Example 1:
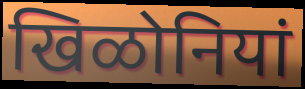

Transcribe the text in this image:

खिळोनियां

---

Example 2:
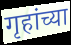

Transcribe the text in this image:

गृहांच्या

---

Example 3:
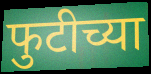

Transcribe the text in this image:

फुटीच्या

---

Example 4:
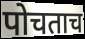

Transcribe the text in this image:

पोचताच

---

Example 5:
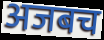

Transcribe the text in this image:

अजबच